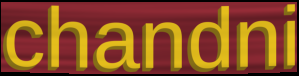
chandni